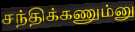
சந்திக்கணும்னு